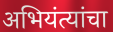
अभियंत्यांचा